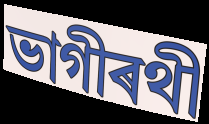
ভাগীৰথী